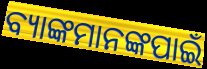
ବ୍ୟାଙ୍କମାନଙ୍କପାଇଁ